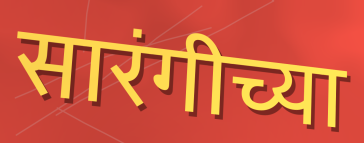
सारंगीच्या